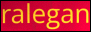
ralegan